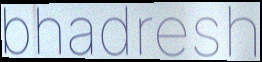
bhadresh